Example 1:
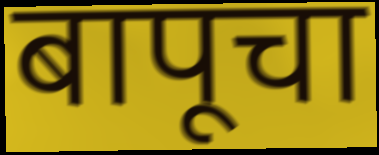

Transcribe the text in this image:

बापूचा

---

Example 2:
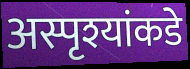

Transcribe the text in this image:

अस्पृश्यांकडे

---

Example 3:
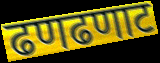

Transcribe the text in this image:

ढणढणाट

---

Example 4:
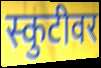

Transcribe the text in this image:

स्कुटीवर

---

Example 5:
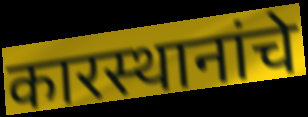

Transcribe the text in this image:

कारस्थानांचे